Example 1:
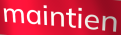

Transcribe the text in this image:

maintien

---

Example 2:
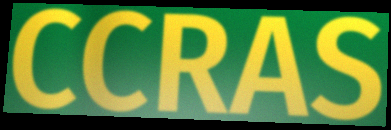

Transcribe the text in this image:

CCRAS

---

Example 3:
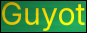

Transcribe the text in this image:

Guyot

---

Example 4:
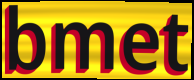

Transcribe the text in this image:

bmet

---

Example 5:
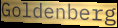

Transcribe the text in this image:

Goldenberg